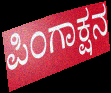
ಪಿಂಗಾಕ್ಷನ